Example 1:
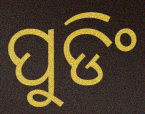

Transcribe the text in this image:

ପୁଡିଂ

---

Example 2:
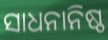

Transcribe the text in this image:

ସାଧନାନିଷ୍ଠ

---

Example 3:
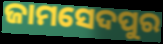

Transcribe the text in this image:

ଜାମସେଦପୁର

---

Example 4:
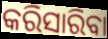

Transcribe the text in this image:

କରିସାରିବା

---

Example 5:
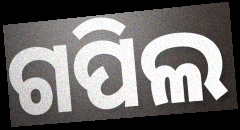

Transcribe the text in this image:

ଗପିଲ